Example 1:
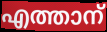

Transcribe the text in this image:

എത്താന്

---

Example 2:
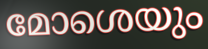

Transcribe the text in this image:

മോശെയും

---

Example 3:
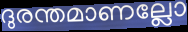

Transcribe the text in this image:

ദുരന്തമാണല്ലോ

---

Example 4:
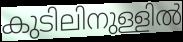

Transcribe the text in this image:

കുടിലിനുള്ളിൽ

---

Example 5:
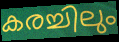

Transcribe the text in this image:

കരച്ചിലും